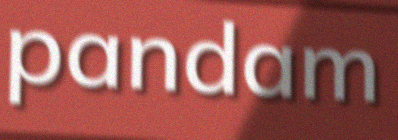
pandam